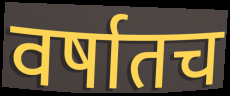
वर्षातच